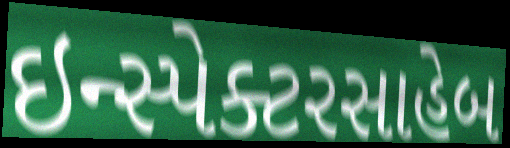
ઇન્સ્પેક્ટરસાહેબ